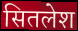
सितलेश